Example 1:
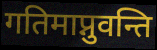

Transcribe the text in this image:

गतिमाप्नुवन्ति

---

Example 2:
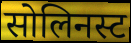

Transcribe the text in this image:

सोलिनस्ट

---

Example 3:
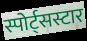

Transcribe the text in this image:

स्पोर्ट्सस्टार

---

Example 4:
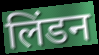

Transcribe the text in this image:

लिंडन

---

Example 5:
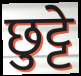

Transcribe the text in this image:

छुट्टे